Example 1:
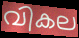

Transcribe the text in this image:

വികല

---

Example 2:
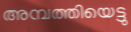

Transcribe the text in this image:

അമ്പത്തിയെട്ടു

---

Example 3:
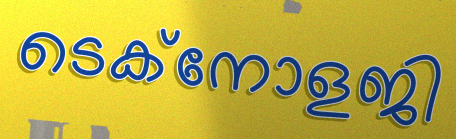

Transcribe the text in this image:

ടെക്നോളജി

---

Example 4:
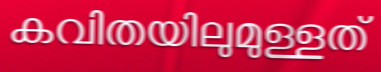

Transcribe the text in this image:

കവിതയിലുമുള്ളത്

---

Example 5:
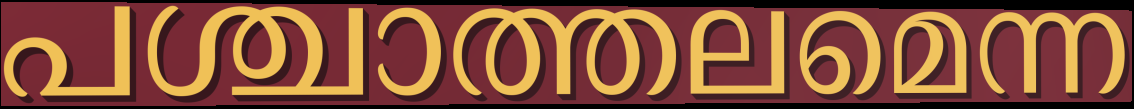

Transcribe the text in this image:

പശ്ചാത്തലമെന്ന